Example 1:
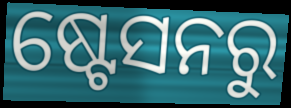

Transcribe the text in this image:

ଷ୍ଟେସନରୁ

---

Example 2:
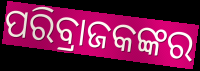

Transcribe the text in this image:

ପରିବ୍ରାଜକଙ୍କର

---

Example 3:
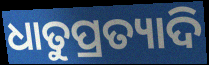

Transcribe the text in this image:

ଧାତୁପ୍ରତ୍ୟାଦି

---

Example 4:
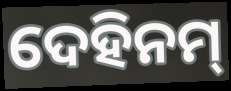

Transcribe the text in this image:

ଦେହିନମ୍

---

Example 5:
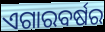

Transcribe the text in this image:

ଏଗାରବର୍ଷର